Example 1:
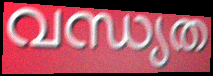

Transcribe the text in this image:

വന്ധ്യത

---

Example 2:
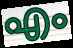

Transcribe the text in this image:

എം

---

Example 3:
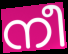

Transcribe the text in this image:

നീ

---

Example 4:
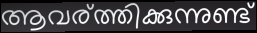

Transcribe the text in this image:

ആവര്ത്തിക്കുന്നുണ്ട്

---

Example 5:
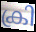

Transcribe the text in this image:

ക്രി